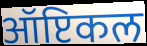
ऑप्टिकल